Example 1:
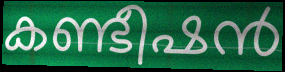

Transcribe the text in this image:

കണ്ടീഷൻ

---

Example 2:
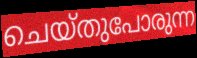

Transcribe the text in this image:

ചെയ്തുപോരുന്ന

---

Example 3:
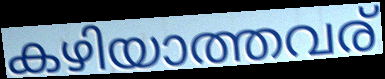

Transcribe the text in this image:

കഴിയാത്തവര്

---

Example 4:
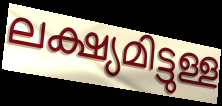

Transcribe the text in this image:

ലക്ഷ്യമിട്ടുള്ള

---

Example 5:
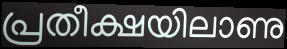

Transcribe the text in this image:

പ്രതീക്ഷയിലാണു